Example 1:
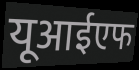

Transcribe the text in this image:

यूआईएफ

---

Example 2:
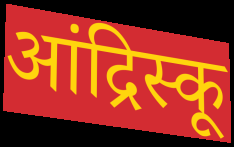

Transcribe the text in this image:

आंद्रिस्कू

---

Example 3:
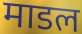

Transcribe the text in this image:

माडल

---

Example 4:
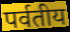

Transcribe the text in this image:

पर्वतीय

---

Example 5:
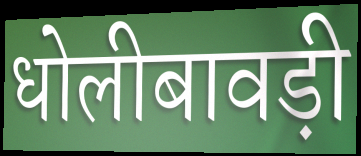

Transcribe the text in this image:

धोलीबावड़ी